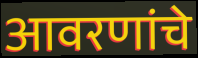
आवरणांचे